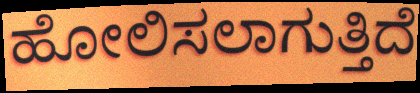
ಹೋಲಿಸಲಾಗುತ್ತಿದೆ